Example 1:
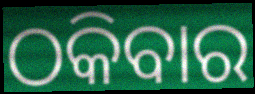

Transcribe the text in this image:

ଠକିବାର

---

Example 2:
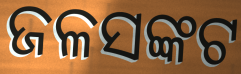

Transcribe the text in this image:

ଜଳସଙ୍କଟ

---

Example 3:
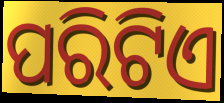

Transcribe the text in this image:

ପରିଟିଏ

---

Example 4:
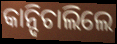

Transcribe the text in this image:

କାନ୍ଦିଚାଲିଲେ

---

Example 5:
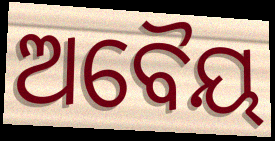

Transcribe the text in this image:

ଅବୈୟ